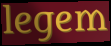
legem